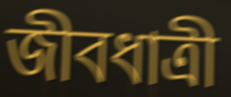
জীবধাত্রী